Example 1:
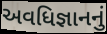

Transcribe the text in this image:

અવધિજ્ઞાનનું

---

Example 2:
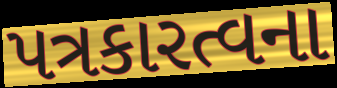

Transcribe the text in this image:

પત્રકારત્વના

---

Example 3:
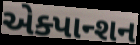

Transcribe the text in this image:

એક્પાન્શન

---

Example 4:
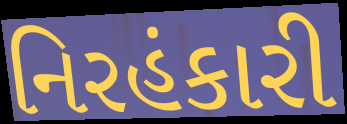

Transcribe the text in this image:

નિરહંકારી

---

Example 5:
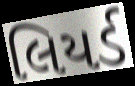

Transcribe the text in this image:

લિયર્ડ